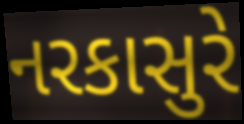
નરકાસુરે